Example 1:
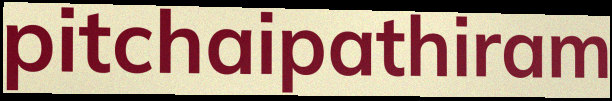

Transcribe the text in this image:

pitchaipathiram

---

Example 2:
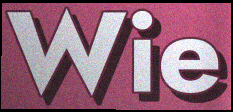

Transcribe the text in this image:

Wie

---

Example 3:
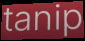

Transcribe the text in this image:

tanip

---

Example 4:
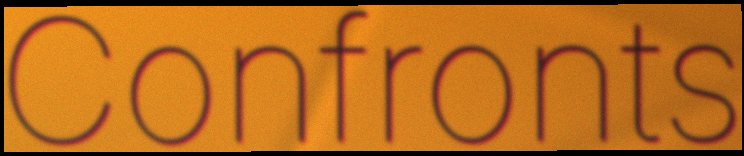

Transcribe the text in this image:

Confronts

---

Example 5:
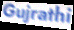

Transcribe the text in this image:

Gujrathi